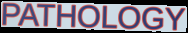
PATHOLOGY